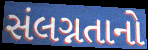
સંલગ્નતાનો